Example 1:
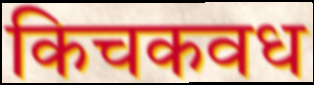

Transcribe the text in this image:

किचकवध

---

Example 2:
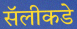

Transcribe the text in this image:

सॅलीकडे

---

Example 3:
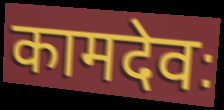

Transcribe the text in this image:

कामदेवः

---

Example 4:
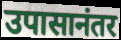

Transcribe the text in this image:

उपासानंतर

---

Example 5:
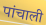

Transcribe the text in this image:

पांचाली